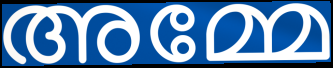
അമ്മേ